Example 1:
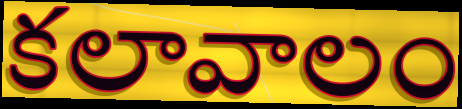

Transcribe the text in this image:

కలావాలం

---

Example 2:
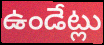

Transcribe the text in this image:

ఉండేట్లు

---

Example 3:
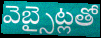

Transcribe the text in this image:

వెబ్సైట్లతో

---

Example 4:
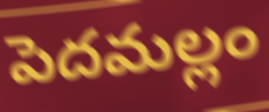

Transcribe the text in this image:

పెదమల్లం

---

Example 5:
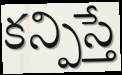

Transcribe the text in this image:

కన్పిస్తే